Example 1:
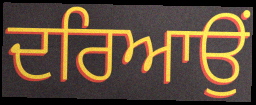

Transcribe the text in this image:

ਦਰਿਆਉਂ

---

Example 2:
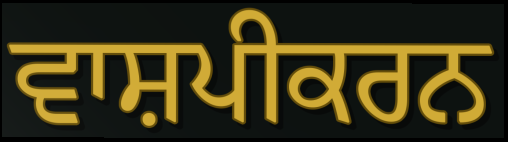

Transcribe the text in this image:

ਵਾਸ਼ਪੀਕਰਨ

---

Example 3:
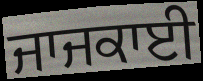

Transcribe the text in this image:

ਜਾਜਕਾਈ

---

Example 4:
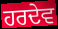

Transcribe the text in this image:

ਹਰਦੇਵ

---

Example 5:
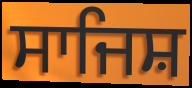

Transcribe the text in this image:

ਸਾਜਿਸ਼